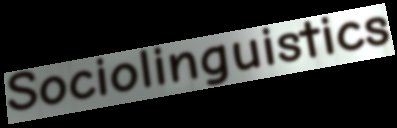
Sociolinguistics